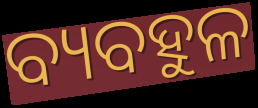
ବ୍ୟବହୁଳ